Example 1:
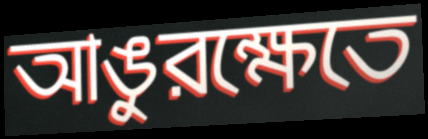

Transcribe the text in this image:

আঙুরক্ষেতে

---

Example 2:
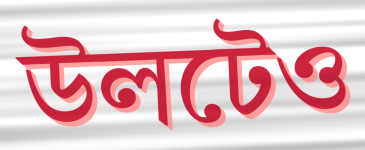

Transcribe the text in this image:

উলটেও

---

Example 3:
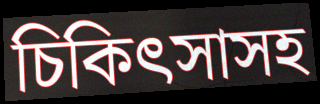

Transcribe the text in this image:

চিকিৎসাসহ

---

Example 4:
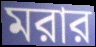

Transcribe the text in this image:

মরার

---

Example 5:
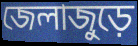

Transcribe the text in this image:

জেলাজুড়ে